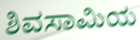
ಶಿವಸಾಮಿಯ